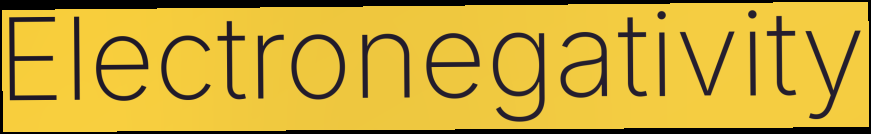
Electronegativity